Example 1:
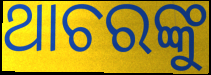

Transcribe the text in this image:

ଥାଚରଙ୍କୁ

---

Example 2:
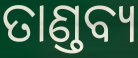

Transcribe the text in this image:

ତାଣ୍ଡବ୍ୟ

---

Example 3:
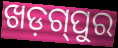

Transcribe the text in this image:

ଖଡ଼ଗ୍‌ପୁର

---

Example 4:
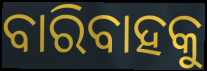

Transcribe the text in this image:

ବାରିବାହକୁ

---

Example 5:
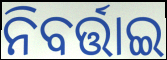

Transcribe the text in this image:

ନିବର୍ତ୍ତାଇ